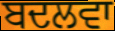
ਬਦਲਵਾ